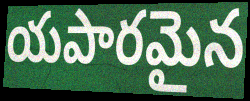
యపారమైన